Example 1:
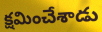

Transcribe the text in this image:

క్షమించేశాడు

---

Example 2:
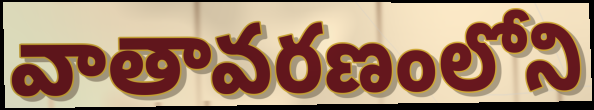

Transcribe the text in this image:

వాతావరణంలోని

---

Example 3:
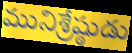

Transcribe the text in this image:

మునిశ్రేష్ఠుడు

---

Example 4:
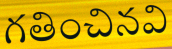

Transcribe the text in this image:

గతించినవి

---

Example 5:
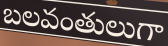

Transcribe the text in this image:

బలవంతులుగా